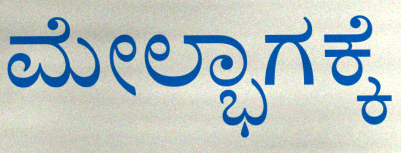
ಮೇಲ್ಭಾಗಕ್ಕೆ